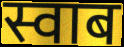
स्वाब